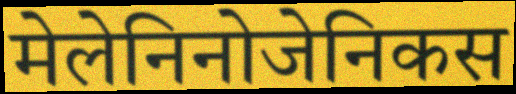
मेलेनिनोजेनिकस